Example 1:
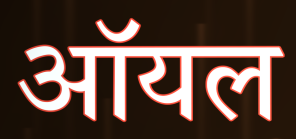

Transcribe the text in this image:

ऑयल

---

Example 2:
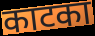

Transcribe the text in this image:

काटका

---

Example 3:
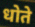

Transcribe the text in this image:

धोते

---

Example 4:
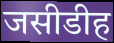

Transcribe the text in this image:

जसीडीह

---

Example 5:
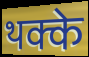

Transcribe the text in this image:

थक्के